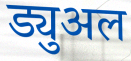
ड्युअल